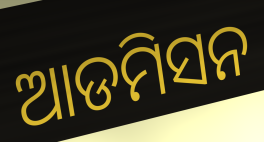
ଆଡମିସନ